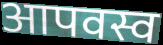
आपवस्व